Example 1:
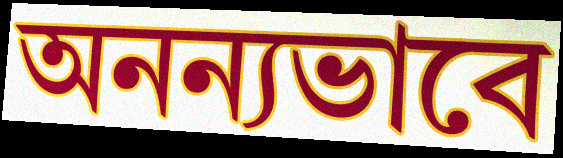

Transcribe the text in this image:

অনন্যভাবে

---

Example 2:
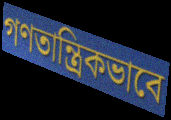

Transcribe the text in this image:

গণতান্ত্রিকভাবে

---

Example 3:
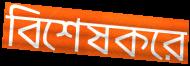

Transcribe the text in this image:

বিশেষকরে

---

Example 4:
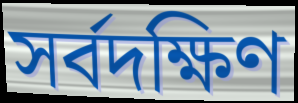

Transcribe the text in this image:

সর্বদক্ষিণ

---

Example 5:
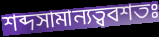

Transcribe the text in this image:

শব্দসামান্যত্ববশতঃ